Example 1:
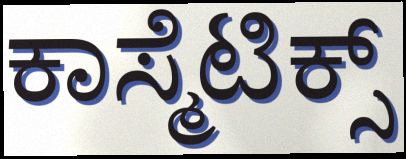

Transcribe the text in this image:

ಕಾಸ್ಮೆಟಿಕ್ಸ್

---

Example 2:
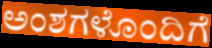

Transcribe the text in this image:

ಅಂಶಗಳೊಂದಿಗೆ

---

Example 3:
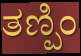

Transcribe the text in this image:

ತಣ್ಪಿಂ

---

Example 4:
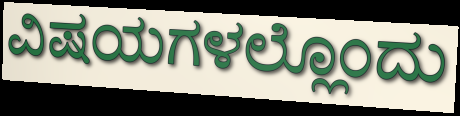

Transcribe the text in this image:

ವಿಷಯಗಳಲ್ಲೊಂದು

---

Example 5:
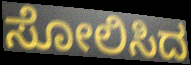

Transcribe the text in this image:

ಸೋಲಿಸಿದ